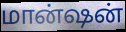
மான்ஷன்